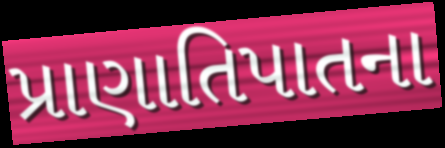
પ્રાણાતિપાતના